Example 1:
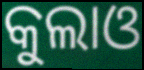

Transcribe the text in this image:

କୁଲାଓ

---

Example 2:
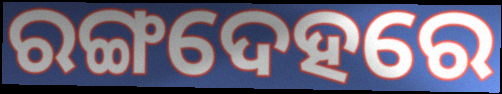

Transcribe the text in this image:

ରଙ୍ଗଦେହରେ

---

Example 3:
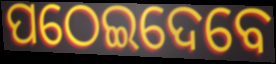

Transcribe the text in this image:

ପଠେଇଦେବେ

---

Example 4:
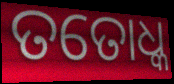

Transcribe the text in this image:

ତତୋଧ୍କ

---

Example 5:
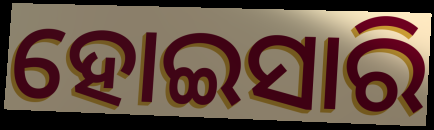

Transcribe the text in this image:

ହୋଇସାରି